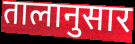
तालानुसार